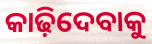
କାଢ଼ିଦେବାକୁ